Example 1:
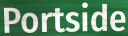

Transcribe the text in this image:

Portside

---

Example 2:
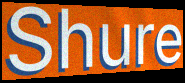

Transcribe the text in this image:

Shure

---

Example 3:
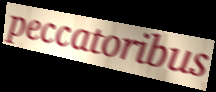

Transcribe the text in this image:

peccatoribus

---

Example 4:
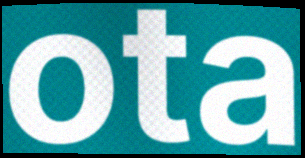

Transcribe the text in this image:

ota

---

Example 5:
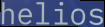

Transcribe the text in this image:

helios